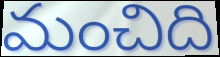
మంచిది